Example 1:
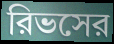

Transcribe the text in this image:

রিভসের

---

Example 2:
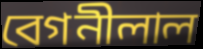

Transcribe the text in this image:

বেগনীলাল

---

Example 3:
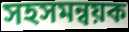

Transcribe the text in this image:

সহসমন্বয়ক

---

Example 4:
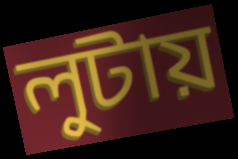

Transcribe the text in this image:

লুটায়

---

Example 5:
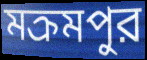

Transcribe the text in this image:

মক্রমপুর